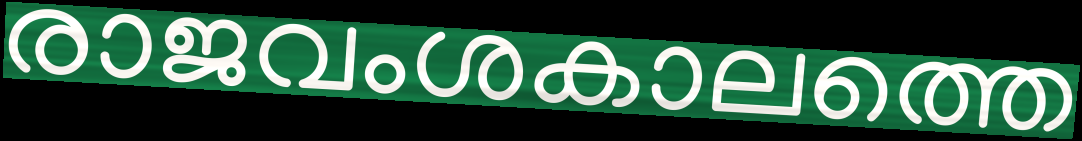
രാജവംശകാലത്തെ